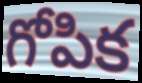
గోపిక